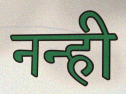
नन्ही